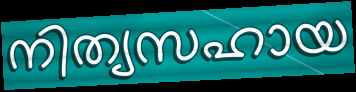
നിത്യസഹായ